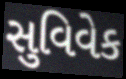
સુવિવેક